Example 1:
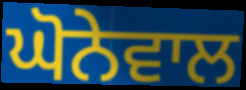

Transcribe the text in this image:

ਘੋਨੇਵਾਲ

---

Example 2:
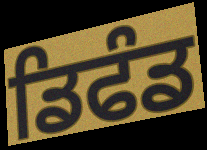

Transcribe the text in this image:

ਡਿਫੰਡ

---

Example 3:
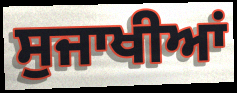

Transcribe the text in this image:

ਸੁਜਾਖੀਆਂ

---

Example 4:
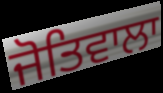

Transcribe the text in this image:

ਜੋਤਿਵਾਲਾ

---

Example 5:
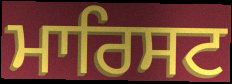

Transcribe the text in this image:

ਮਾਰਿਸਟ